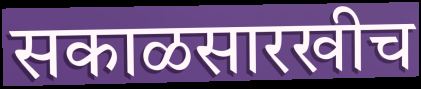
सकाळसारखीच